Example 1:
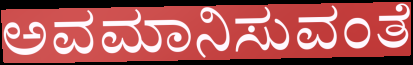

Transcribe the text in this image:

ಅವಮಾನಿಸುವಂತೆ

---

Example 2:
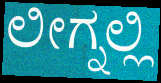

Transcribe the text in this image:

ಲೀಗ್ನಲ್ಲಿ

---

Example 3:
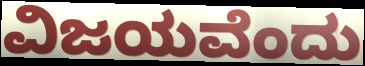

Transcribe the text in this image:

ವಿಜಯವೆಂದು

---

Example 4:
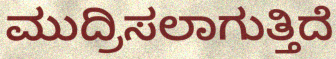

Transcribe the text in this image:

ಮುದ್ರಿಸಲಾಗುತ್ತಿದೆ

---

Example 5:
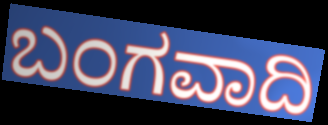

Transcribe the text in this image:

ಬಂಗವಾದಿ